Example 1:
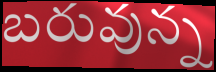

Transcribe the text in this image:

బరువున్న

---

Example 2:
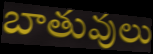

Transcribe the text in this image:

బాతువులు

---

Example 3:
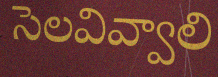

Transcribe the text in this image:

సెలవివ్వాలి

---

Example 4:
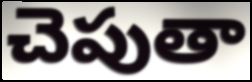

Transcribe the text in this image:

చెపుతా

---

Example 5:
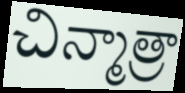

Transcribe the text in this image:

చిన్మాత్రా